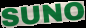
SUNO